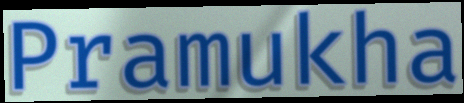
Pramukha